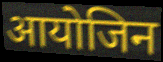
आयोजिन